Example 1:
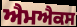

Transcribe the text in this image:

ਐਮਐਕਸ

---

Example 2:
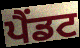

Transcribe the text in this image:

ਪੈਂਡਟ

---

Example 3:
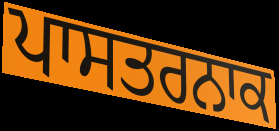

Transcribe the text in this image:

ਪਾਸਤਰਨਾਕ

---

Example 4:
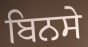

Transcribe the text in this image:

ਬਿਨਸੇ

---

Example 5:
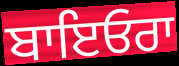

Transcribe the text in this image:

ਬਾਇਓਰਾ